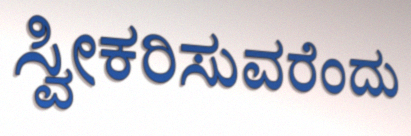
ಸ್ವೀಕರಿಸುವರೆಂದು